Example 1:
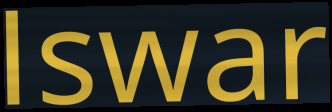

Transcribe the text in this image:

Iswar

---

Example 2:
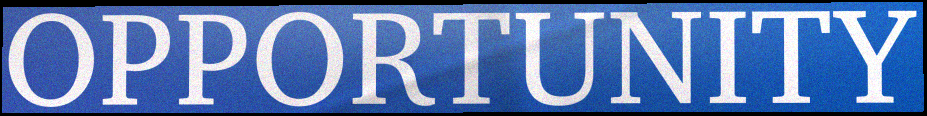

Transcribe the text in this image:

OPPORTUNITY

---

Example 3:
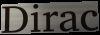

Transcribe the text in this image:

Dirac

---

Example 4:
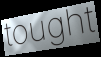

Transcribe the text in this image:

tought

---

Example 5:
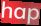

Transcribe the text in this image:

hap